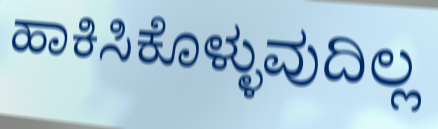
ಹಾಕಿಸಿಕೊಳ್ಳುವುದಿಲ್ಲ